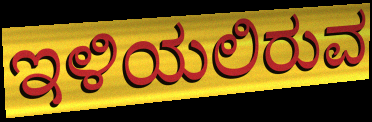
ಇಳಿಯಲಿರುವ